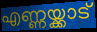
എണ്ണയ്ക്കാട്